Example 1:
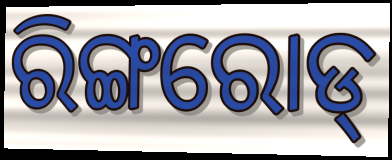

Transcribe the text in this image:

ରିଙ୍ଗରୋଡ୍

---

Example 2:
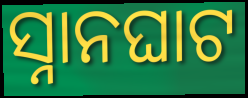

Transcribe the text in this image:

ସ୍ନାନଘାଟ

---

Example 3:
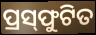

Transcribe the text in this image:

ପ୍ରସ୍‌ଫୁଟିତ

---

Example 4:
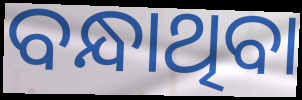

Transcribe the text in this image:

ବନ୍ଧାଥିବା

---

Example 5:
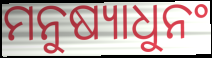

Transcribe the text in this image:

ମନୁଷ୍ୟାଧୁନଂ